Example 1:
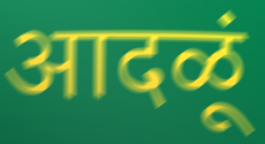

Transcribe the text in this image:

आदळूं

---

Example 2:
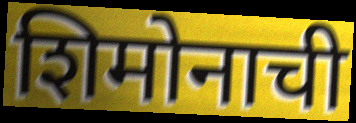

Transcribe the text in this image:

शिमोनाची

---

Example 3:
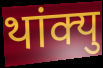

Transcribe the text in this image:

थांक्यु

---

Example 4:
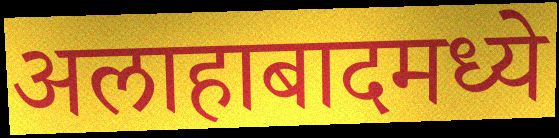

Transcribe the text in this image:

अलाहाबादमध्ये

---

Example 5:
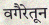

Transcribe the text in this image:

वगैरेतून